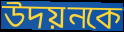
উদয়নকে